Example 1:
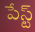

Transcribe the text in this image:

పేస్ట్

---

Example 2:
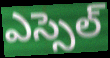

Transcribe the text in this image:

ఎస్సెల్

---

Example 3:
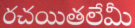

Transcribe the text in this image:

రచయితలేమీ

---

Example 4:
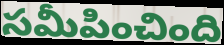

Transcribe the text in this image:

సమీపించింది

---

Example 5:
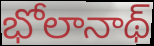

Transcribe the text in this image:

భోలానాథ్